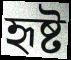
হৃষ্ট